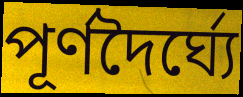
পূর্ণদৈর্ঘ্যে